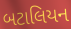
બટાલિયન